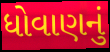
ધોવાણનું